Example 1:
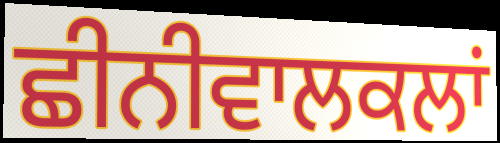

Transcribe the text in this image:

ਛੀਨੀਵਾਲਕਲਾਂ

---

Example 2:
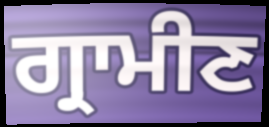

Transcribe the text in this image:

ਗ੍ਰਾਮੀਣ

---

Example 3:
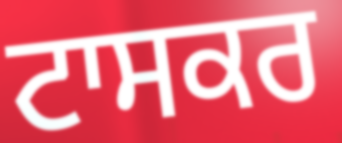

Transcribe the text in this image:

ਟਾਸਕਰ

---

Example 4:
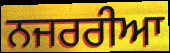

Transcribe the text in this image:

ਨਜਰਰੀਆ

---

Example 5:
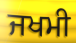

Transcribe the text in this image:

ਜਖਮੀ